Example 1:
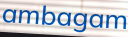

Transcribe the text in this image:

ambagam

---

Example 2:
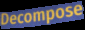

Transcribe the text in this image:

Decompose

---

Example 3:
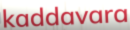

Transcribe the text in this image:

kaddavara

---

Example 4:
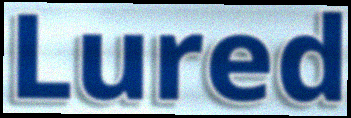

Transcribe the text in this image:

Lured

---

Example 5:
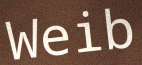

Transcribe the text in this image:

Weib